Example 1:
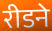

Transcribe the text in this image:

रीडने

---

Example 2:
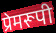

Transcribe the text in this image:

प्रेमरूपी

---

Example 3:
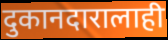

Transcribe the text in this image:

दुकानदारालाही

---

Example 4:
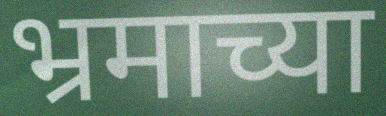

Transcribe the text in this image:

भ्रमाच्या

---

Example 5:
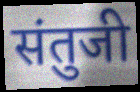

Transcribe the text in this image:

संतुजी